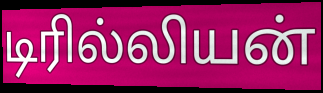
டிரில்லியன்